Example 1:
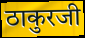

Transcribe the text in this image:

ठाकुरजी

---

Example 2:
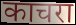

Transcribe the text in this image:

काचरा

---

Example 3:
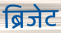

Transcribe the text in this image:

ब्रिजेट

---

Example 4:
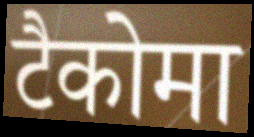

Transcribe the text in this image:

टैकोमा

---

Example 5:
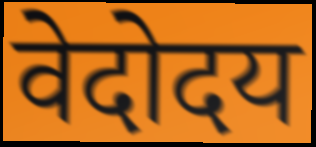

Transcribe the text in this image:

वेदोदय